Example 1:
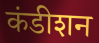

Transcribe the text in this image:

कंडीशन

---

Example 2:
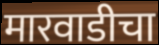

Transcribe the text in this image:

मारवाडीचा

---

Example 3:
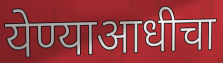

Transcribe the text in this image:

येण्याआधीचा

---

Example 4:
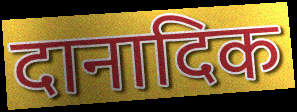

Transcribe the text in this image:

दानादिक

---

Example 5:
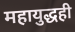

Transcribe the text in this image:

महायुद्धही